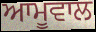
ਆਮੂਵਾਲ